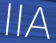
IIA